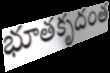
భూతకృదంత